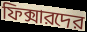
ফিক্সারদের